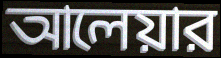
আলেয়ার